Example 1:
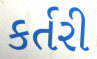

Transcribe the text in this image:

કર્તરી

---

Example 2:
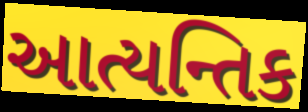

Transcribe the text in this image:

આત્યન્તિક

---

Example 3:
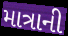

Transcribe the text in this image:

માત્રાની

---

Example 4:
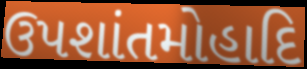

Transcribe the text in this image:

ઉપશાંતમોહાદિ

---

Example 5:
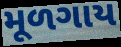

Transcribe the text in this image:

મૂળગાય